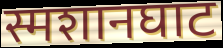
स्मशानघाट